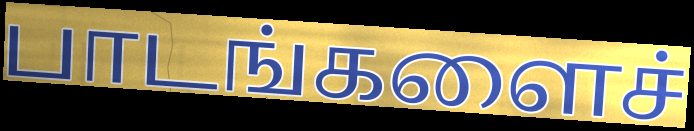
பாடங்களைச்